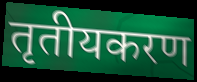
तृतीयकरण